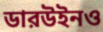
ডারউইনও